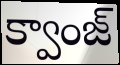
క్వాంజ్